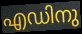
എഡിനു